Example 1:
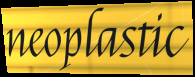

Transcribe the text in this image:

neoplastic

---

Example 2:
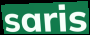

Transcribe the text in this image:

saris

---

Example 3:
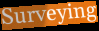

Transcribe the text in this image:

Surveying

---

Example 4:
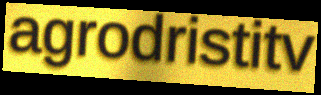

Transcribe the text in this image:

agrodristitv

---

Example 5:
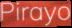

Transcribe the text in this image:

Pirayo